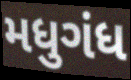
મધુગંધ